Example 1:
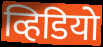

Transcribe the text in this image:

व्हिडियो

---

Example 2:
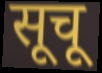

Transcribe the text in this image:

सूचू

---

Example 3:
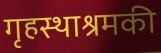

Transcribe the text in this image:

गृहस्थाश्रमकी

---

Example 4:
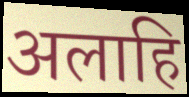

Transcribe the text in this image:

अलाहि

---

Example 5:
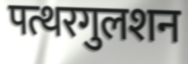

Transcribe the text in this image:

पत्थरगुलशन